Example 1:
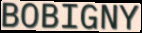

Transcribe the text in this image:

BOBIGNY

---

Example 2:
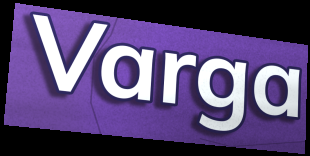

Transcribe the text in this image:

Varga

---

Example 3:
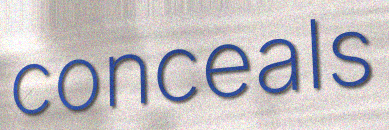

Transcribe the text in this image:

conceals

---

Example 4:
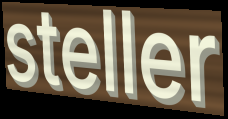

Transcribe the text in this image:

steller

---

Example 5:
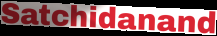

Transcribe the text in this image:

Satchidanand